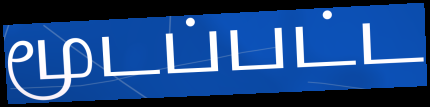
மூடப்பட்ட